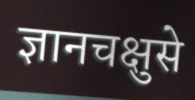
ज्ञानचक्षुसे